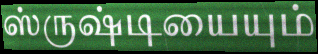
ஸ்ருஷ்டியையும்